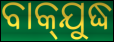
ବାକ୍‌ଯୁଦ୍ଧ